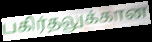
பகிர்தலுக்கான